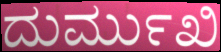
ದುರ್ಮುಖಿ